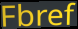
Fbref